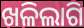
ଖଳିଲାଗି